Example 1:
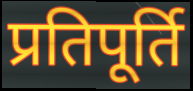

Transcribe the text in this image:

प्रतिपूर्ति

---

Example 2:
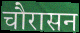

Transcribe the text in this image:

चौरासन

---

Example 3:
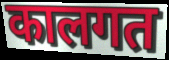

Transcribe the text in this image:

कालगत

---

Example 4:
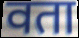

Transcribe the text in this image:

वता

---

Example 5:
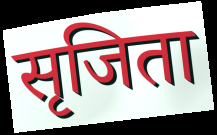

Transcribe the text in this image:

सृजिता